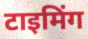
टाइमिंग